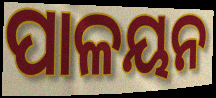
ପାଳୟନ